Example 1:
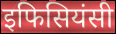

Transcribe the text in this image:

इफिसियंसी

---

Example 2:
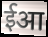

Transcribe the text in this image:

ईआ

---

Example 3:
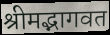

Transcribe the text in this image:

श्रीमद्भागवत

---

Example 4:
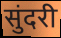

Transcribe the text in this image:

सुंदरी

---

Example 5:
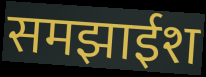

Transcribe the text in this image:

समझाईश